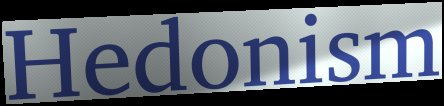
Hedonism